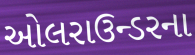
ઓલરાઉન્ડરના